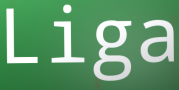
Liga